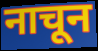
नाचून